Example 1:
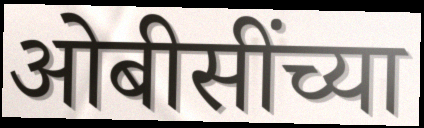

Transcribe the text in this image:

ओबीसींच्या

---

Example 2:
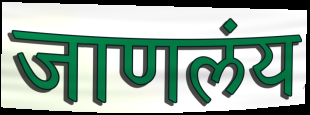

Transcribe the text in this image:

जाणलंय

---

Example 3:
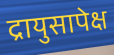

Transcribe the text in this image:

द्रायुसापेक्ष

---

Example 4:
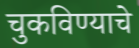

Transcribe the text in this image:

चुकविण्याचे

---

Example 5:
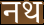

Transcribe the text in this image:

नथ